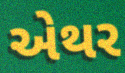
એથર